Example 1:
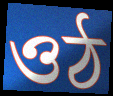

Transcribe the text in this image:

ওঠ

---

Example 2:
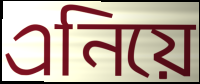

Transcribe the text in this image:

এনিয়ে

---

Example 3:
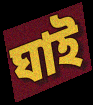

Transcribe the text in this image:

ঘাই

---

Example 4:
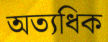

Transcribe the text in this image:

অত্যধিক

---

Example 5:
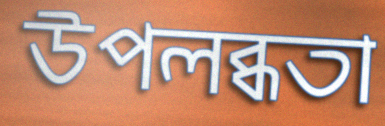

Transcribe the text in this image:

উপলব্ধতা